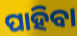
ପାହିବା